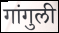
गांगुली